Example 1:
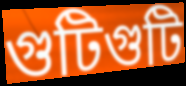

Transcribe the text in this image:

গুটিগুটি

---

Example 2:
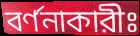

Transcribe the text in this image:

বর্ণনাকারীঃ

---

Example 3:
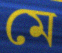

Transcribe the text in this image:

মে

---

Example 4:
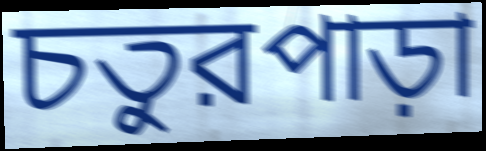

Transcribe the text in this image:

চতুরপাড়া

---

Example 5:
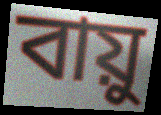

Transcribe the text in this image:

বায়ু